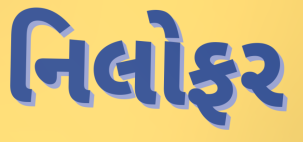
નિલોફર